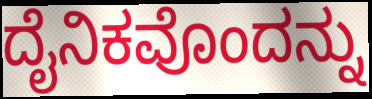
ದೈನಿಕವೊಂದನ್ನು